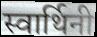
स्वार्थिनी